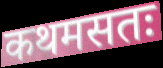
कथमसतः